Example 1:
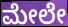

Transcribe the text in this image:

ಮೇಲೇ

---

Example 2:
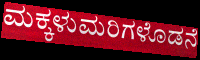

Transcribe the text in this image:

ಮಕ್ಕಳುಮರಿಗಳೊಡನೆ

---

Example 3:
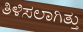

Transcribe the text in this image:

ತಿಳಿಸಲಾಗಿತ್ತು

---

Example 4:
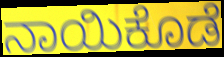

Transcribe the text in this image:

ನಾಯಿಕೊಡೆ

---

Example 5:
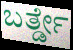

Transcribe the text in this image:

ಬರ್ತ್ಡೇ